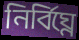
নিৰ্বিঘ্নে